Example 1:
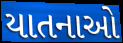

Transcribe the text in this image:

યાતનાઓ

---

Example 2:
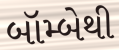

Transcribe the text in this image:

બૉમ્બેથી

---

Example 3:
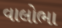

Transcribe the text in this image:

વાલોભા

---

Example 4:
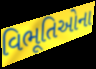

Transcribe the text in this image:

વિભૂતિઓના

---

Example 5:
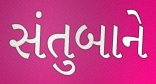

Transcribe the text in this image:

સંતુબાને